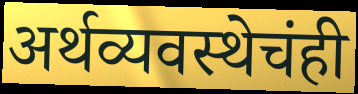
अर्थव्यवस्थेचंही